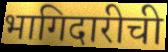
भागिदारीची